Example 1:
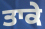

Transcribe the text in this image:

ਤਾਕੇ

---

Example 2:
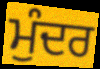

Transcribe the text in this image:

ਮੁੰਦਰ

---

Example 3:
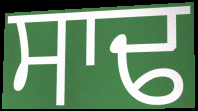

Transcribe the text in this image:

ਸਾਢ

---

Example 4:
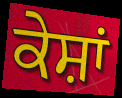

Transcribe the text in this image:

ਕੇਸ਼ਾਂ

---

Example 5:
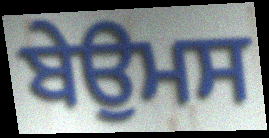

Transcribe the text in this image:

ਬੇਉਮਸ